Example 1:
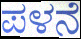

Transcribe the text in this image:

ಪಳನೆ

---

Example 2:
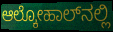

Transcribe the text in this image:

ಆಲ್ಕೋಹಾಲ್‌ನಲ್ಲಿ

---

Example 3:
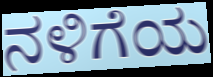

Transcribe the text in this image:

ನಳಿಗೆಯ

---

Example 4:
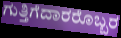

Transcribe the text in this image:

ಗುತ್ತಿಗೆದಾರರೊಬ್ಬರ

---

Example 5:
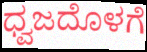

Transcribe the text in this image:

ಧ್ವಜದೊಳಗೆ